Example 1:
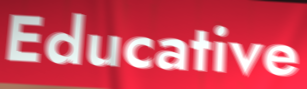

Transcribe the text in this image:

Educative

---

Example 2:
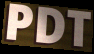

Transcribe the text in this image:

PDT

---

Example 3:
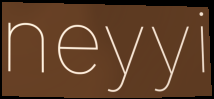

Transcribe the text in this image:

neyyi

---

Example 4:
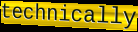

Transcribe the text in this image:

technically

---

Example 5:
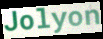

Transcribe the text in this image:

Jolyon